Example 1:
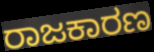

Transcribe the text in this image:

ರಾಜಕಾರಣ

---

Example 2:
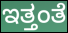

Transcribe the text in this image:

ಇತ್ತಂತೆ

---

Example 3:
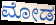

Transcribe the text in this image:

ಮೋಡ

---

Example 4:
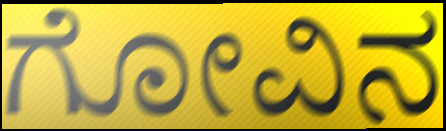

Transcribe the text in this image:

ಗೋವಿನ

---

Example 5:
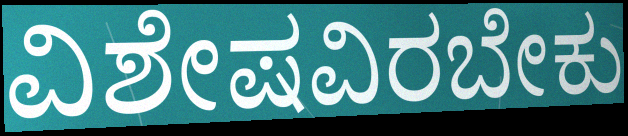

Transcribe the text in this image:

ವಿಶೇಷವಿರಬೇಕು